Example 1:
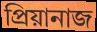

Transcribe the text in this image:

প্রিয়ানাজ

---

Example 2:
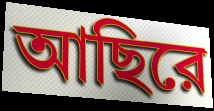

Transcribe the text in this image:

আছিরে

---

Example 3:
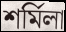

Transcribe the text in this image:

শর্মিলা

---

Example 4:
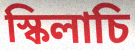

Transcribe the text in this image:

স্কিলাচি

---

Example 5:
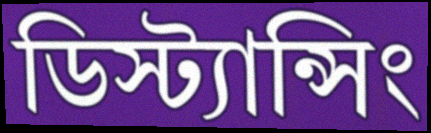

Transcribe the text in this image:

ডিস্ট্যান্সিং